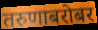
तरुणाबरोबर